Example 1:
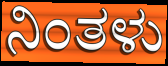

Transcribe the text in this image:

ನಿಂತಳು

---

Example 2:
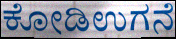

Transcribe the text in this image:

ಕೋಡಿಉಗನೆ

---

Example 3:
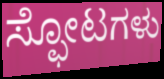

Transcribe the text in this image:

ಸ್ಫೋಟಗಳು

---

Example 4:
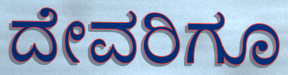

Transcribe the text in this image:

ದೇವರಿಗೂ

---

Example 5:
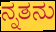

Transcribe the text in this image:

ನ್ನತನು